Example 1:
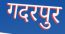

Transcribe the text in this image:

गदरपुर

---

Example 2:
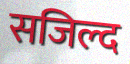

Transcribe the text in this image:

सजिल्द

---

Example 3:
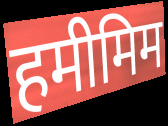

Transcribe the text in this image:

हमीमिम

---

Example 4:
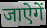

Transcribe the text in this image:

जाऐगें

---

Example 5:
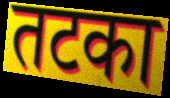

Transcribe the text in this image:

तटका